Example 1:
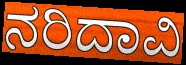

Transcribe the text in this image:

ನರಿದಾವಿ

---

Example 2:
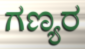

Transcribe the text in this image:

ಗಣ್ಯರ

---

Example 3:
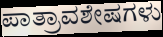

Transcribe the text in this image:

ಪಾತ್ರಾವಶೇಷಗಳು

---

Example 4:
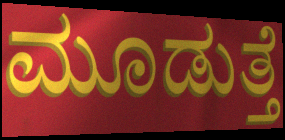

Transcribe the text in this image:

ಮೂಡುತ್ತೆ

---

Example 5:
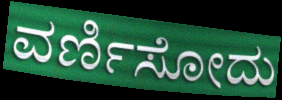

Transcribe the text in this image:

ವರ್ಣಿಸೋದು